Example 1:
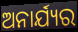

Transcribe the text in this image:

ଅନାର୍ଯ୍ୟର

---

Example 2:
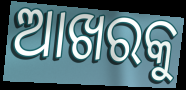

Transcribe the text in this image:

ଆଖରକୁ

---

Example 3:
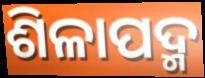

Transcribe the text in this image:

ଶିଳାପଦ୍ମ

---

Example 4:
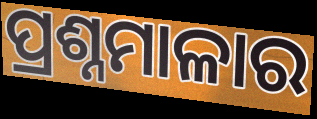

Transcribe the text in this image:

ପ୍ରଶ୍ନମାଳାର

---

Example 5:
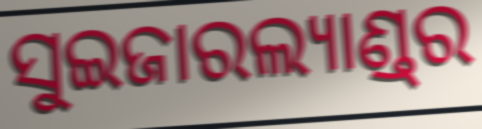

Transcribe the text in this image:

ସୁଇଜାରଲ୍ୟାଣ୍ଡ୍‌ର